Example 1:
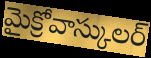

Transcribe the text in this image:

మైక్రోవాస్కులర్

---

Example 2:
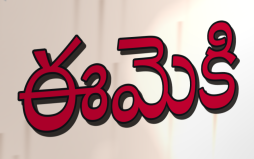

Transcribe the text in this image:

ఈమెకి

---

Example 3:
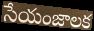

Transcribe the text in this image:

సేయంజాలక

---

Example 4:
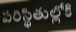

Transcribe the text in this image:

పరిస్థితుల్లోకి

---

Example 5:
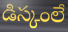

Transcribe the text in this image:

డిస్కంలే